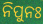
ନିପୁନଃ